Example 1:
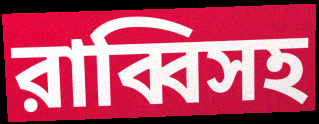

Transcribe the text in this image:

রাব্বিসহ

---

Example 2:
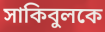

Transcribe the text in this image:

সাকিবুলকে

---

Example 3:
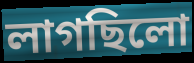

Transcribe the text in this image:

লাগছিলো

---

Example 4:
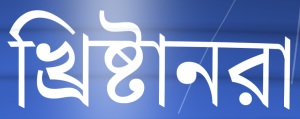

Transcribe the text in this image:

খ্রিষ্টানরা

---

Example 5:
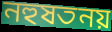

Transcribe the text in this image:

নহুষতনয়